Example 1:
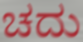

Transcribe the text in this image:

ಚದು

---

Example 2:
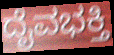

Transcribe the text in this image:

ದೈವಭಕ್ತಿ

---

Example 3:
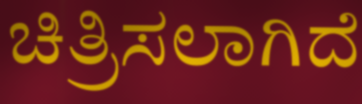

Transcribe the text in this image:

ಚಿತ್ರಿಸಲಾಗಿದೆ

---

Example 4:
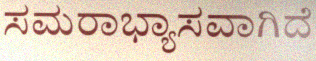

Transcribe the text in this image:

ಸಮರಾಭ್ಯಾಸವಾಗಿದೆ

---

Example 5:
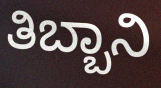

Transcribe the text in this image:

ತಿಬ್ಬಾನಿ